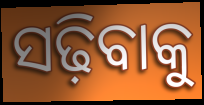
ସଢ଼ିବାକୁ